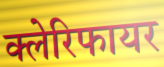
क्लेरिफायर